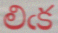
లిఁక